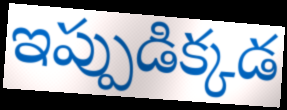
ఇప్పుడిక్కడ